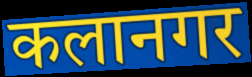
कलानगर